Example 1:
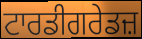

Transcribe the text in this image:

ਟਾਰਡੀਗਰੇਡਜ਼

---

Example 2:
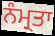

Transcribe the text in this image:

ਨੰਮ੍ਰਤਾ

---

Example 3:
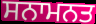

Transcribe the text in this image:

ਸਨਾਮਨਤ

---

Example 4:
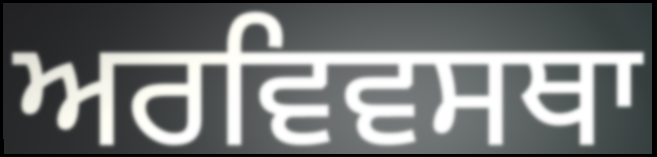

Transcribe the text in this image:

ਅਰਵਿਵਸਥਾ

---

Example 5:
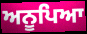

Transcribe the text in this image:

ਅਨੂਪਿਆ